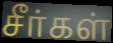
சீர்கள்